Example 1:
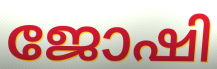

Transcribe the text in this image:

ജോഷി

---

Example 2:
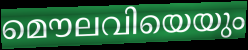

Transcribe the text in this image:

മൌലവിയെയും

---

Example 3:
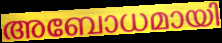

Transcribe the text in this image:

അബോധമായി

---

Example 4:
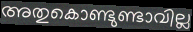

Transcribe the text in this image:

അതുകൊണ്ടുണ്ടാവില്ല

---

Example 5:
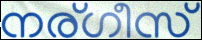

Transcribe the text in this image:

നര്ഗീസ്